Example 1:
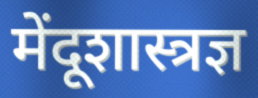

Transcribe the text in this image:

मेंदूशास्त्रज्ञ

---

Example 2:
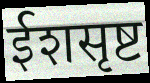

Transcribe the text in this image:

ईशसृष्ट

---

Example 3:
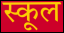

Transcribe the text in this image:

स्कूल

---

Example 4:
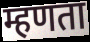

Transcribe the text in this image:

म्हणता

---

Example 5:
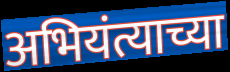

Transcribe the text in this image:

अभियंत्याच्या